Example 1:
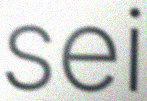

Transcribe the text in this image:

sei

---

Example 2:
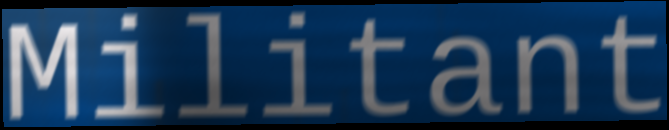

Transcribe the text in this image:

Militant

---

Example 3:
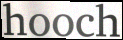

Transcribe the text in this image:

hooch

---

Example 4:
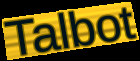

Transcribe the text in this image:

Talbot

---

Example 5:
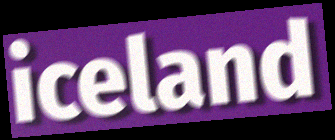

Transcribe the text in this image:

iceland